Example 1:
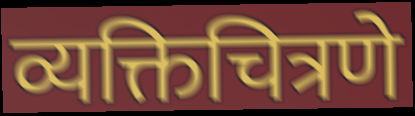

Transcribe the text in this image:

व्यक्तिचित्रणे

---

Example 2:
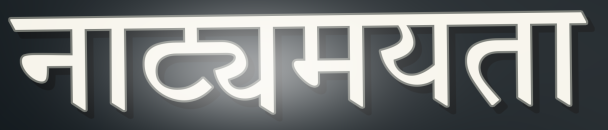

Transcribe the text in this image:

नाट्यमयता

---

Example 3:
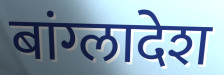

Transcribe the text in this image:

बांग्लादेश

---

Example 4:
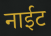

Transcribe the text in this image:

नाईट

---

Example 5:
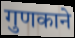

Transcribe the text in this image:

गुणकाने